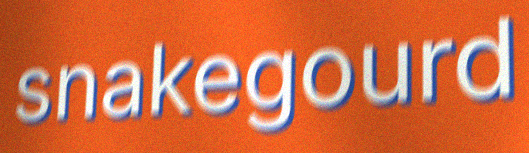
snakegourd